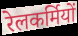
रेलकर्मियों